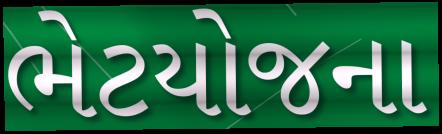
ભેટયોજના